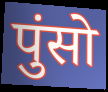
पुंसो